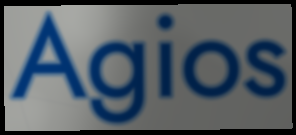
Agios